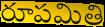
రూపమితి